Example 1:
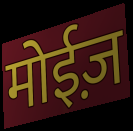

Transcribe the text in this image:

मोईज़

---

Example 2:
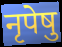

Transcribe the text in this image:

नृपेषु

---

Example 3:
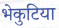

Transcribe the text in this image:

भेकुटिया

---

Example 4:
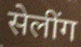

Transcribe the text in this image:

सेलींग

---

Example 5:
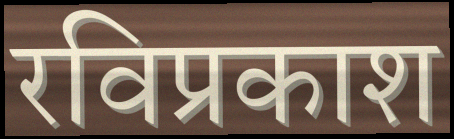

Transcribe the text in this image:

रविप्रकाश